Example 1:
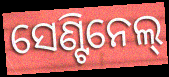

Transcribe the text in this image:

ସେଣ୍ଟିନେଲ୍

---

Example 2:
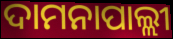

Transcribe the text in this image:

ଦାମନାପାଲ୍ଲୀ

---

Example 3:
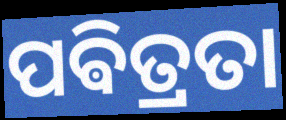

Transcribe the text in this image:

ପଵିତ୍ରତା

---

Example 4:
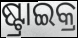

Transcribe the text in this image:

ଷ୍ଟ୍ରାଇକ୍ର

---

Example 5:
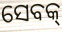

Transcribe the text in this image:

ସେବକ୍